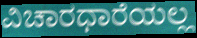
ವಿಚಾರಧಾರೆಯಲ್ಲ